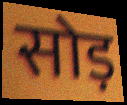
सोड़